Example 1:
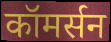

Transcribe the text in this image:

कॉमर्सन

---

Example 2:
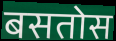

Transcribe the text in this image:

बसतोस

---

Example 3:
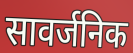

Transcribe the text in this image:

सावर्जनिक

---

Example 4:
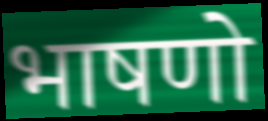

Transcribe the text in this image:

भाषणो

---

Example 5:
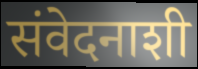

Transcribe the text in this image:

संवेदनाशी